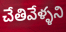
చేతివేళ్ళని